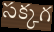
సక్కగ